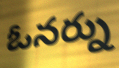
ఓనర్ను